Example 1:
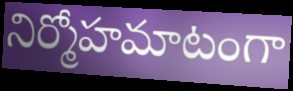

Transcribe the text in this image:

నిర్మోహమాటంగా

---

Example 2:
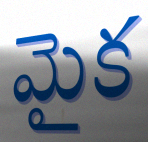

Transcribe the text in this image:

మైక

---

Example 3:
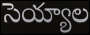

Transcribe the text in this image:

సెయ్యాల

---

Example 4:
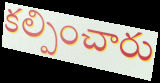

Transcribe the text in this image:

కల్పించారు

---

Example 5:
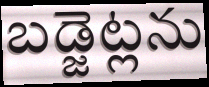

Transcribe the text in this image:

బడ్జెట్లను